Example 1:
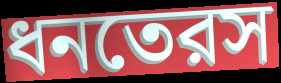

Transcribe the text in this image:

ধনতেরস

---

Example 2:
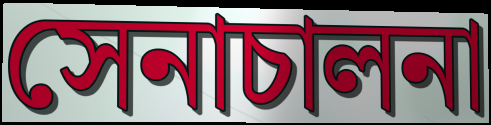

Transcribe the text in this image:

সেনাচালনা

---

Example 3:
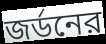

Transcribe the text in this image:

জর্ডনের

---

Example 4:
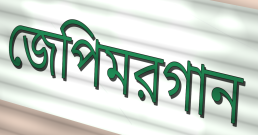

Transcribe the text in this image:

জেপিমরগান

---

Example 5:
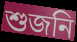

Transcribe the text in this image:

শুজনি